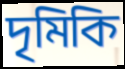
দৃমিকি